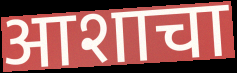
आशाचा